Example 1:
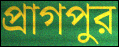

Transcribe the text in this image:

প্রাগপুর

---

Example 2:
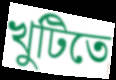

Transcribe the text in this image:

খুটিতে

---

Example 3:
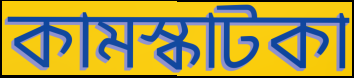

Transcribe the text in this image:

কামস্কাটকা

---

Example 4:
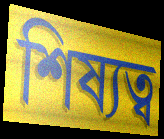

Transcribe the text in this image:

শিষ্যত্ব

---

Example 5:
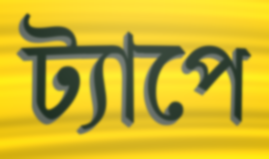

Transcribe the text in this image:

ট্যাপে